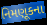
નિમણૂકના